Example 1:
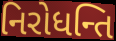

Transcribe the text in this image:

નિરોધન્તિ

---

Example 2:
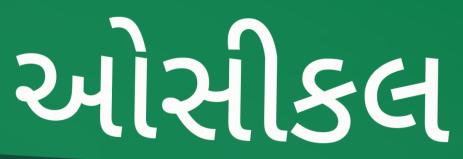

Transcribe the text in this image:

ઓસીકલ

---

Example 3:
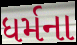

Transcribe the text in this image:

ધર્મના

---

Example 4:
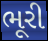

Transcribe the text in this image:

ભૂરી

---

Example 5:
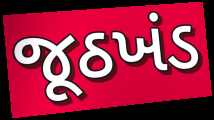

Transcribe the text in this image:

જૂઠખંડ